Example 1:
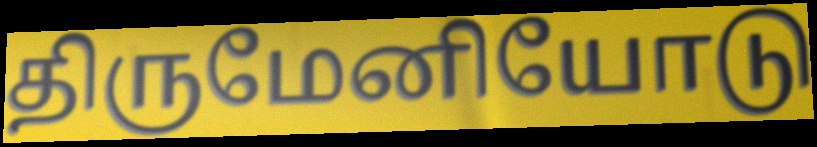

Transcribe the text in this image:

திருமேனியோடு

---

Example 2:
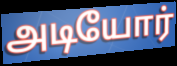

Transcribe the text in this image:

அடியோர்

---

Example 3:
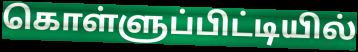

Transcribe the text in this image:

கொள்ளுப்பிட்டியில்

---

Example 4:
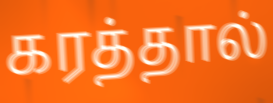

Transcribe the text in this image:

கரத்தால்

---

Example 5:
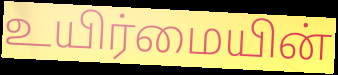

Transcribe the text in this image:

உயிர்மையின்